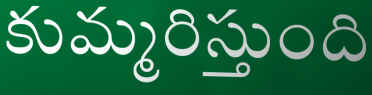
కుమ్మరిస్తుంది